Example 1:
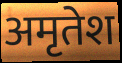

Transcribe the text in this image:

अमृतेश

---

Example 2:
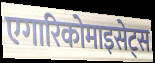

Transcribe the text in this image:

एगारिकोमाइसेट्स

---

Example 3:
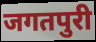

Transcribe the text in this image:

जगतपुरी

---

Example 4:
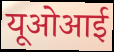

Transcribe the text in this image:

यूओआई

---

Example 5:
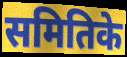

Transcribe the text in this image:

समितिके